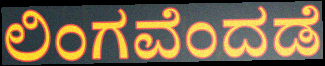
ಲಿಂಗವೆಂದಡೆ